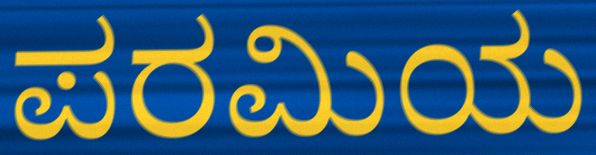
ಪರಮಿಯ